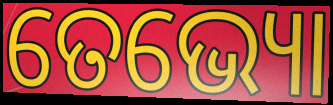
ତେଭ୍ୟୋ